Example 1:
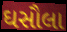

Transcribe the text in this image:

ઘસૌલા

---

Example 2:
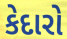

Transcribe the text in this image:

કેદારો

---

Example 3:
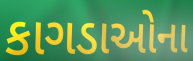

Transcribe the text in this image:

કાગડાઓના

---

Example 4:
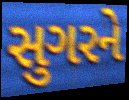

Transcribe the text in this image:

સુગરને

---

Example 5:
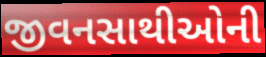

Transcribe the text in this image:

જીવનસાથીઓની